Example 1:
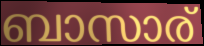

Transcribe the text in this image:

ബാസാര്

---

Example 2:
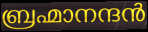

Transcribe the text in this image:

ബ്രഹ്മാനന്ദൻ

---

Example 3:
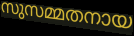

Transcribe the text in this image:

സുസമ്മതനായ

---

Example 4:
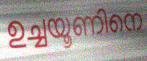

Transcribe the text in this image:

ഉച്ചയൂണിനെ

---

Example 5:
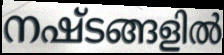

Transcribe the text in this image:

നഷ്ടങ്ങളിൽ